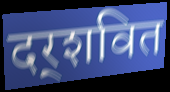
दर्शवित